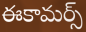
ఈకామర్స్